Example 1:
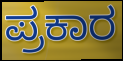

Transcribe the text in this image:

ಪ್ರಕಾರ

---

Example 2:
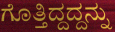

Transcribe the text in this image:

ಗೊತ್ತಿದ್ದದ್ದನ್ನು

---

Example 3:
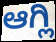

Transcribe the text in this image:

ಆಗ್ಲಿ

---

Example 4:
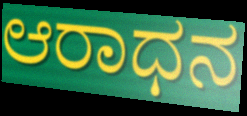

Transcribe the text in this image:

ಆರಾಧನ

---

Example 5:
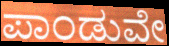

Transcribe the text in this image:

ಪಾಂಡುವೇ